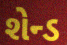
શેન્ડ